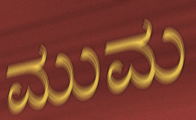
ಮುಮ